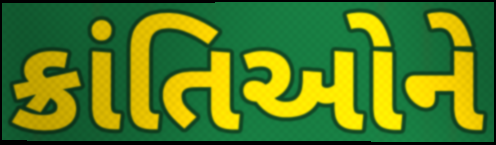
ક્રાંતિઓને